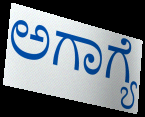
ಅಗಾಗ್ಯೆ